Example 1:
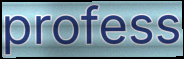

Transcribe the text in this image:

profess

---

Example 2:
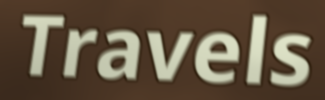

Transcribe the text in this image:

Travels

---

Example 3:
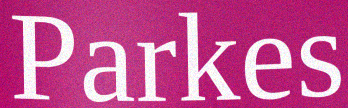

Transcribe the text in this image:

Parkes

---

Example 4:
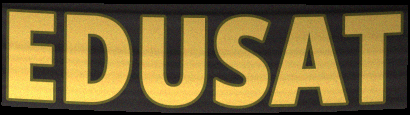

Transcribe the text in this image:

EDUSAT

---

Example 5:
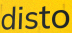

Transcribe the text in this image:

disto